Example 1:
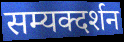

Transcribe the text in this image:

सम्यक्दर्शन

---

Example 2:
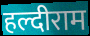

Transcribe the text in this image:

हल्दीराम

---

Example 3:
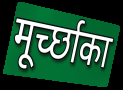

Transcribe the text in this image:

मूर्च्छाका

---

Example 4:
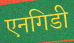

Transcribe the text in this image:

एनगिडी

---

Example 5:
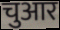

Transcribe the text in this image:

चुआर